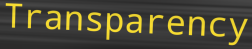
Transparency